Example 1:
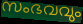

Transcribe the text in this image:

സംഭവവും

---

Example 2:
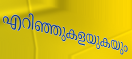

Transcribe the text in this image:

എറിഞ്ഞുകളയുകയും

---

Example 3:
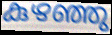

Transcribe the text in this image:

കുഴഞ്ഞു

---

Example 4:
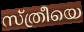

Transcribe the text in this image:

സ്ത്രീയെ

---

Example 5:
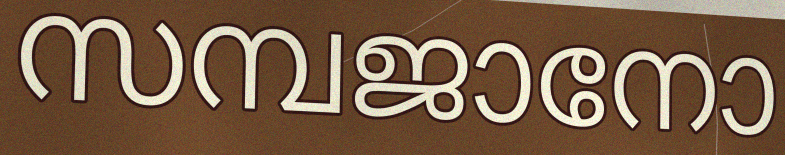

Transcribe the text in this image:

സമ്പജാനോ